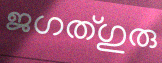
ജഗത്ഗുരു